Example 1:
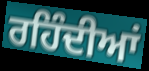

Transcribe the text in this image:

ਰਹਿੰਦੀਆਂ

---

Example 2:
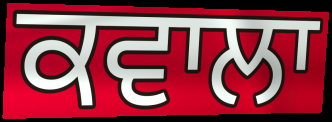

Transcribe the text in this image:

ਕਵਾਲਾ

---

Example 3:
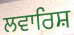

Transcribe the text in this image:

ਲਵਾਰਿਸ਼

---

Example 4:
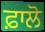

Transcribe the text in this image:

ਫ਼ਾਲੋ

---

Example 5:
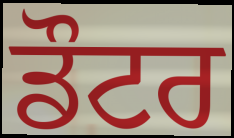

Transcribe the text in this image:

ਡੌਟਰ